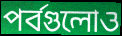
পর্বগুলোও